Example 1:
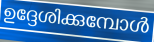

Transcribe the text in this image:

ഉദ്ദേശിക്കുമ്പോൾ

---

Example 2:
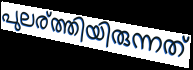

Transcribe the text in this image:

പുലര്ത്തിയിരുന്നത്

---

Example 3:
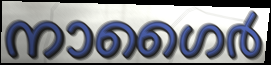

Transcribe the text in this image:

നാഗൈർ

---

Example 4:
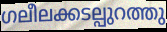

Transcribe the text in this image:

ഗലീലക്കടല്പുറത്തു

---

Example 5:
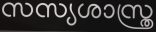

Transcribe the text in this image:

സസ്യശാസ്ത്ര